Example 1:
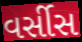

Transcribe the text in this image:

વર્સીસ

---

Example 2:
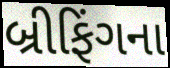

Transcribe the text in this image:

બ્રીફિંગના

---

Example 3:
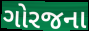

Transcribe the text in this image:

ગોરજના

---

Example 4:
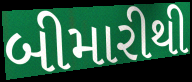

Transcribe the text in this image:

બીમારીથી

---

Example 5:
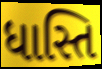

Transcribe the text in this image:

ધાસ્તિ